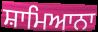
ਸ਼ਾਮਿਆਨਾ